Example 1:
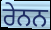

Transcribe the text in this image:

ਰੇਨਨ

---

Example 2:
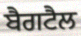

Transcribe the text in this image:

ਬੈਗਟੈਲ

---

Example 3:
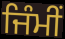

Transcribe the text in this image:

ਜਿੰਮੀਂ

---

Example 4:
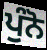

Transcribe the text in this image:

ਪੁੰਨੋ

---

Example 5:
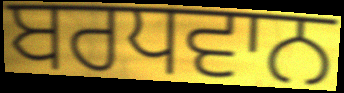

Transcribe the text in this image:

ਬਰਧਵਾਨ